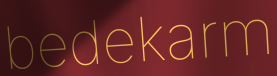
bedekarm